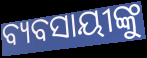
ବ୍ୟବସାୟୀଙ୍କୁ